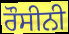
ਰੌਸੀਨੀ